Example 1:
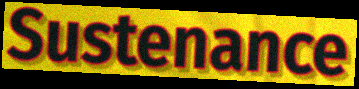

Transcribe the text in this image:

Sustenance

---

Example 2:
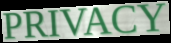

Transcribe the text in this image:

PRIVACY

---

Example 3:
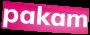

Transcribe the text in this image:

pakam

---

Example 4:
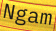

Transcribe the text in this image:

Ngam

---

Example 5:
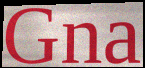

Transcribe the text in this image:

Gna